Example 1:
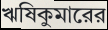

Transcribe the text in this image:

ঋষিকুমারের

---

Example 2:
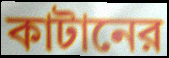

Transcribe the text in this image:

কাটানের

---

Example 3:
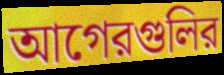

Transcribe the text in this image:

আগেরগুলির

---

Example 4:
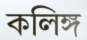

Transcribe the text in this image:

কলিঙ্গ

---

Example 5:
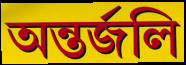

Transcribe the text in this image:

অন্তর্জলি